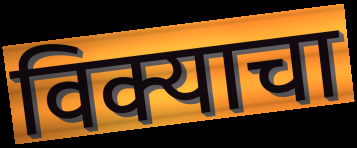
विक्याचा